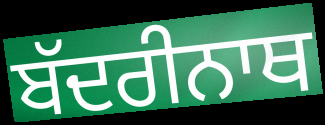
ਬੱਦਰੀਨਾਥ